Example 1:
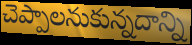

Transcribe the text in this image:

చెప్పాలనుకున్నదాన్ని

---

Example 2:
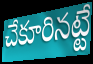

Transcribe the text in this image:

చేకూరినట్టే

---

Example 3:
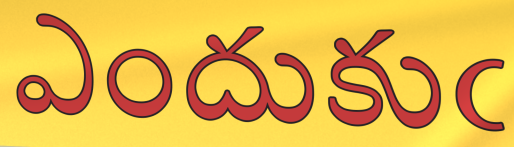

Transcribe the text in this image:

ఎందుకుఁ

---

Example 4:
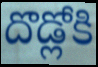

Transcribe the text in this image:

దొడ్లోకి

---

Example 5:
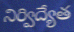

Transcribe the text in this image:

నిర్విద్యేత